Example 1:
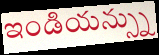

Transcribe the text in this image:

ఇండియన్స్ను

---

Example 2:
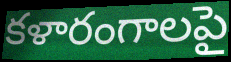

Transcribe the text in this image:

కళారంగాలపై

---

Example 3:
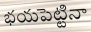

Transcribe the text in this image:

భయపెట్టినా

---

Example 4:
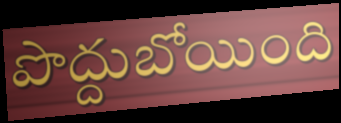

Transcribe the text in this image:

పొద్దుబోయింది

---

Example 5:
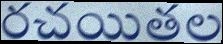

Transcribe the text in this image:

రచయితల